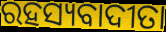
ରହସ୍ୟବାଦୀତା